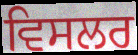
ਵਿਸਲਰ